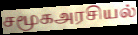
சமூகஅரசியல்